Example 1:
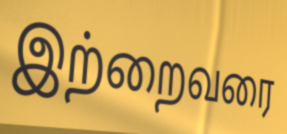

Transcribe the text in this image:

இற்றைவரை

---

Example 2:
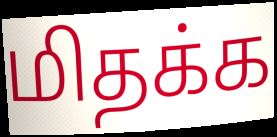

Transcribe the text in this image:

மிதக்க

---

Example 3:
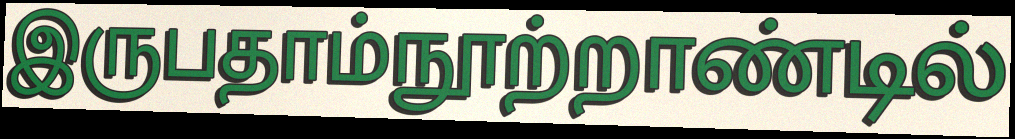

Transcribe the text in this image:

இருபதாம்நூற்றாண்டில்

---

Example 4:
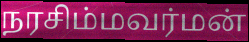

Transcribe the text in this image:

நரசிம்மவர்மன்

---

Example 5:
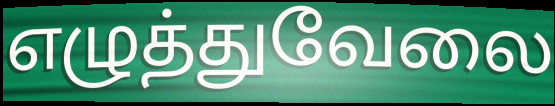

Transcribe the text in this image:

எழுத்துவேலை